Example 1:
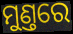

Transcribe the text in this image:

ମୁଣ୍ତରେ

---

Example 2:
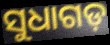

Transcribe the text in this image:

ସୁଧାଗଡ଼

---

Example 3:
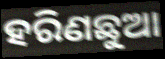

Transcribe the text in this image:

ହରିଣଛୁଆ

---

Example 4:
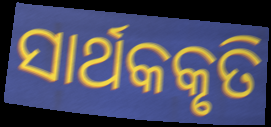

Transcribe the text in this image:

ସାର୍ଥକକୃତି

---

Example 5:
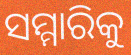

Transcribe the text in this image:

ସମ୍ମାରିକୁ